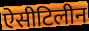
ऐसीटिलीन